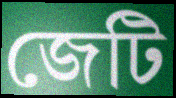
জেটি